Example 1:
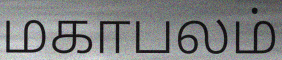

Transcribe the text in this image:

மகாபலம்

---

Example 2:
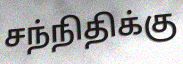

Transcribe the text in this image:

சந்நிதிக்கு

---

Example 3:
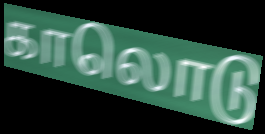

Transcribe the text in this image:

காலொடு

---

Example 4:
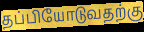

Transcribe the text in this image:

தப்பியோடுவதற்கு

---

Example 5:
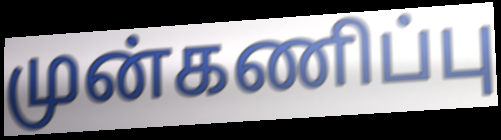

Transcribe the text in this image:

முன்கணிப்பு